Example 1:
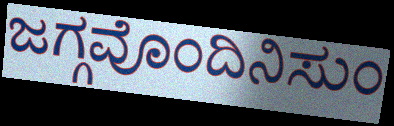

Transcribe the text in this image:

ಜಗ್ಗವೊಂದಿನಿಸುಂ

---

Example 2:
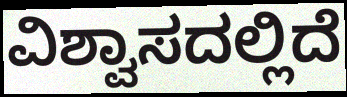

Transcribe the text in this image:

ವಿಶ್ವಾಸದಲ್ಲಿದೆ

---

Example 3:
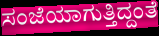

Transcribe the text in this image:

ಸಂಜೆಯಾಗುತ್ತಿದ್ದಂತೆ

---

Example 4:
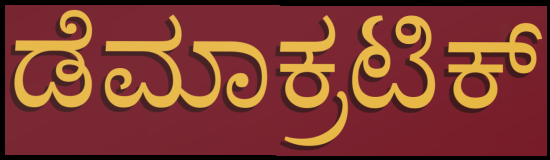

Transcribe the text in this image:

ಡೆಮಾಕ್ರಟಿಕ್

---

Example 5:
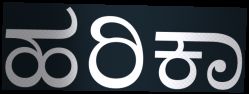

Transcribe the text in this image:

ಹರಿಕಾ